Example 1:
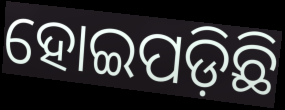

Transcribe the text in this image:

ହୋଇପଡ଼ିଛି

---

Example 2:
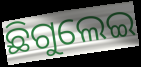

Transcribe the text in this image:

ଛିଗୁଲେଇ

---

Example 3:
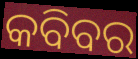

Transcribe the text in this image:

କବିବର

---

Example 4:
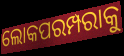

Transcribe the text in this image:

ଲୋକପରମ୍ପରାକୁ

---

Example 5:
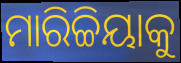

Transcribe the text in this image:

ମାରିଚ୍ଚିୟାକୁ